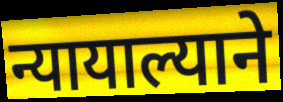
न्यायाल्याने